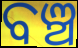
ବଞ୍ଚ